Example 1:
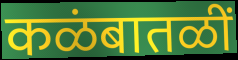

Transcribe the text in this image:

कळंबातळीं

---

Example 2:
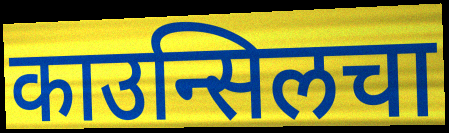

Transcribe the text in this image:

काउन्सिलचा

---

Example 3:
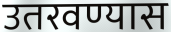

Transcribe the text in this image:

उतरवण्यास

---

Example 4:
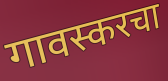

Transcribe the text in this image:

गावस्करचा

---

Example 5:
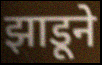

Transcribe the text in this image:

झाडूने